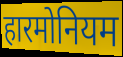
हारमोनियम